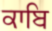
ਕਾਬਿ